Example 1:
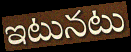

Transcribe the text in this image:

ఇటునటు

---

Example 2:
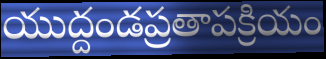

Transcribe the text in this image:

యుద్దండప్రతాపక్రియం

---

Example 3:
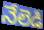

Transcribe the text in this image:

నేలెడి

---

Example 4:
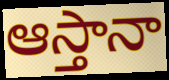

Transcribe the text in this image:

ఆస్తానా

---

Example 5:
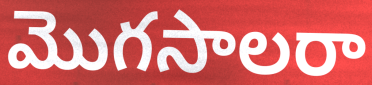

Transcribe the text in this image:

మొగసాలరా